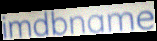
imdbname